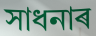
সাধনাৰ